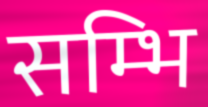
सम्भि